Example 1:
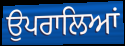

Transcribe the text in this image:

ਉਪਰਾਲਿਆਂ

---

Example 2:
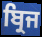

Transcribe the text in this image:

ਬ੍ਰਿਜ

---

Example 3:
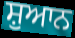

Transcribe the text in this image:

ਸ਼ੁਆਨ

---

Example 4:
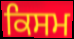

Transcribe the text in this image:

ਕਿਸਮ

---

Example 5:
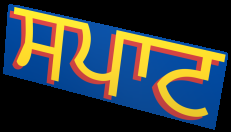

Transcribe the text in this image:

ਸਪਾਟ